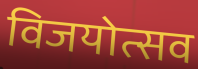
विजयोत्सव